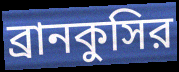
ব্রানকুসির